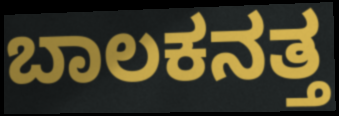
ಬಾಲಕನತ್ತ